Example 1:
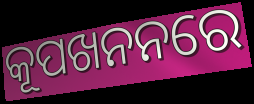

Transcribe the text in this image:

କୂପଖନନରେ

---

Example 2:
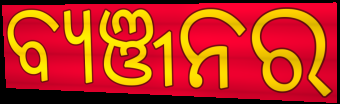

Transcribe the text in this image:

ବ୍ୟଞ୍ଜନର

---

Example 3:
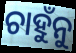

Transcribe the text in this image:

ଚାହୁଁନୁ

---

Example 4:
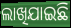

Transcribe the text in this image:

ଲାଖିଯାଇଛି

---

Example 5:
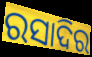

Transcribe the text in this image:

ରସାଦିର